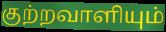
குற்றவாளியும்